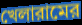
খেলারামের